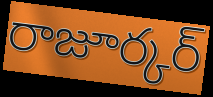
రాజూర్కర్